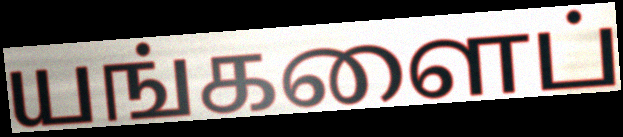
யங்களைப்